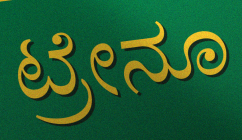
ಟ್ರೇನೂ